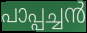
പാപ്പച്ചൻ